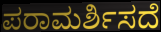
ಪರಾಮರ್ಶಿಸದೆ